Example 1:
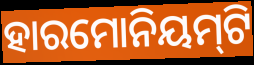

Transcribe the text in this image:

ହାରମୋନିୟମ୍‍ଟି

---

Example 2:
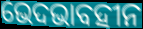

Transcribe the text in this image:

ଭେଦଭାବହୀନ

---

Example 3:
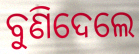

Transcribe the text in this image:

ବୁଣିଦେଲେ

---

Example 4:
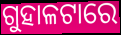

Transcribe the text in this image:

ଗୁହାଳଟାରେ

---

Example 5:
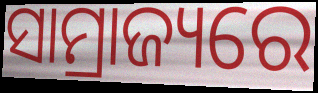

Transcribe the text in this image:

ସାମ୍ରାଜ୍ୟରେ